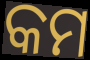
କମ